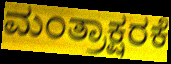
ಮಂತ್ರಾಕ್ಷರಕೆ